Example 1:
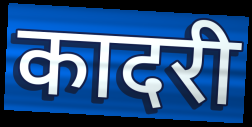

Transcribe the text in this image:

कादरी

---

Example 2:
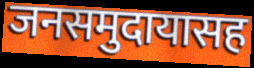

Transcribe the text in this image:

जनसमुदायासह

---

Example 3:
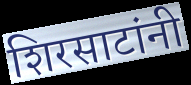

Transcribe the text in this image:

शिरसाटांनी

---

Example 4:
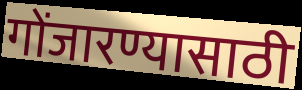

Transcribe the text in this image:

गोंजारण्यासाठी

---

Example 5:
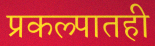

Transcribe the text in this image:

प्रकल्पातही